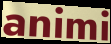
animi